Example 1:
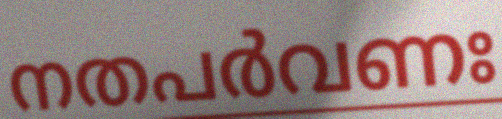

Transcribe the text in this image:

നതപർവണഃ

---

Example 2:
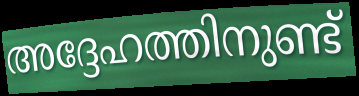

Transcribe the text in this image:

അദ്ദേഹത്തിനുണ്ട്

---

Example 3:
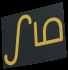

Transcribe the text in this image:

ഽഥ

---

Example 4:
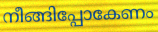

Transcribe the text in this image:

നീങ്ങിപ്പോകേണം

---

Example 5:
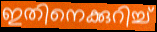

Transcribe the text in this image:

ഇതിനെക്കുറിച്ച്